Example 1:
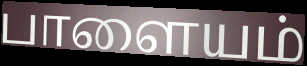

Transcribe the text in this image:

பாளையம்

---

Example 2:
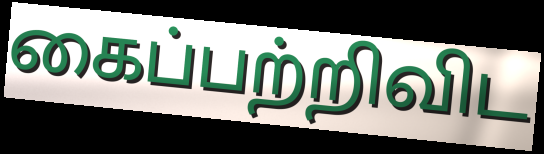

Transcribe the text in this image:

கைப்பற்றிவிட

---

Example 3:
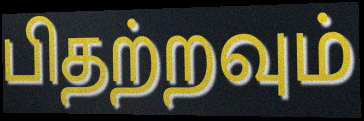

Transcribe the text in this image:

பிதற்றவும்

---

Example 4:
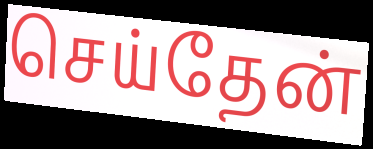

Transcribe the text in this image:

செய்தேன்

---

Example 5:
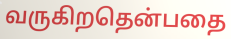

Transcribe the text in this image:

வருகிறதென்பதை